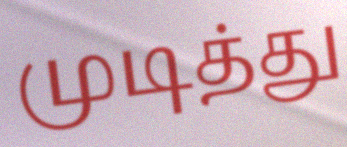
முடித்து